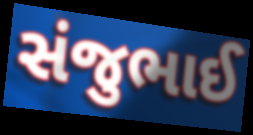
સંજુભાઈ